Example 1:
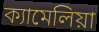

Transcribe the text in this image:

ক্যামেলিয়া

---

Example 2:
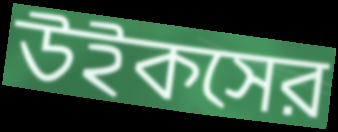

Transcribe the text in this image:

উইকসের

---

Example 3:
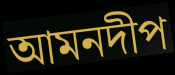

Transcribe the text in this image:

আমনদীপ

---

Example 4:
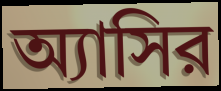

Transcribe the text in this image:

অ্যাসির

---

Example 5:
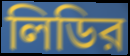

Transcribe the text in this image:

লিডির